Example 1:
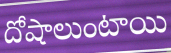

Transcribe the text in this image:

దోషాలుంటాయి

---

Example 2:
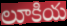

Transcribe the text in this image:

లూకియ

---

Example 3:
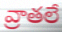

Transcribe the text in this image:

వ్రాతలే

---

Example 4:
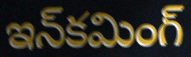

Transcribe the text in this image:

ఇన్‌కమింగ్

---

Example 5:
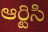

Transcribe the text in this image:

ఆర్టిసి